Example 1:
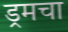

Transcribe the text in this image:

ड्रमचा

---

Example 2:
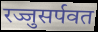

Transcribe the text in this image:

रज्जुसर्पवत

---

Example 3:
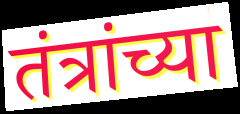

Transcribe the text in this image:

तंत्रांच्या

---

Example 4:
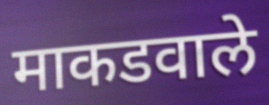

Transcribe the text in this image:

माकडवाले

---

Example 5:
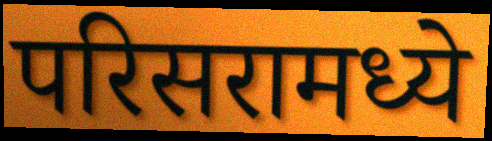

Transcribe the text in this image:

परिसरामध्ये